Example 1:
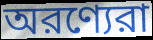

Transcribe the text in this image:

অরণ্যেরা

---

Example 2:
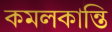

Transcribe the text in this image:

কমলকান্তি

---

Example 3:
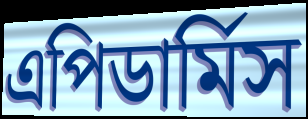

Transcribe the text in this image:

এপিডার্মিস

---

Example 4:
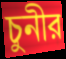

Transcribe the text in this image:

চুনীর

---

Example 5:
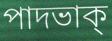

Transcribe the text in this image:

পাদভাক্